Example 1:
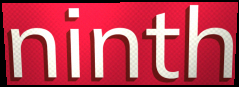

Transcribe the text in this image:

ninth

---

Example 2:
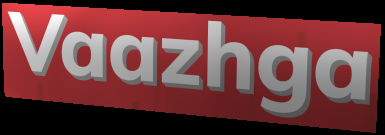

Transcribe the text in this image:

Vaazhga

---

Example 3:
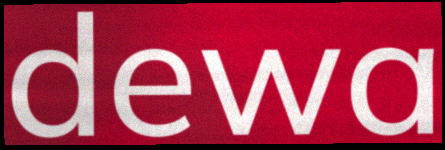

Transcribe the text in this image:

dewa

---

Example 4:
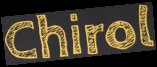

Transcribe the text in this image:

Chirol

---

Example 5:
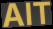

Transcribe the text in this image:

AIT